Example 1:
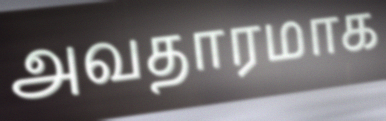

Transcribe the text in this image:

அவதாரமாக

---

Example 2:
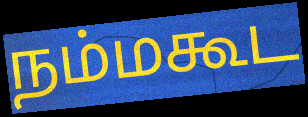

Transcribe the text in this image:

நம்மகூட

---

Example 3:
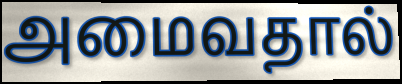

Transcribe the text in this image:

அமைவதால்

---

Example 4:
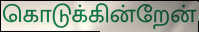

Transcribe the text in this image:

கொடுக்கின்றேன்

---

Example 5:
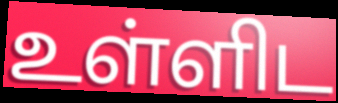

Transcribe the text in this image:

உள்ளிட